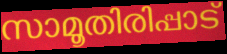
സാമൂതിരിപ്പാട്